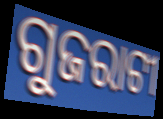
ଗୁଜରାଟୀ